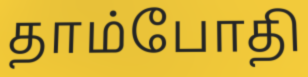
தாம்போதி